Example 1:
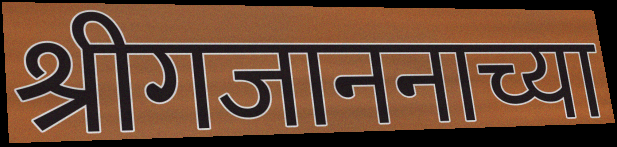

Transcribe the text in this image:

श्रीगजाननाच्या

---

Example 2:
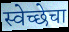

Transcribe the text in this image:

स्वेच्छेचा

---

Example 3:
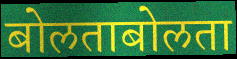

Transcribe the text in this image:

बोलताबोलता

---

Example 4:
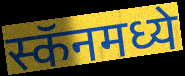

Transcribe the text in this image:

स्कॅनमध्ये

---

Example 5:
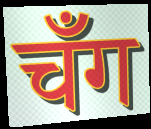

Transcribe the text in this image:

चँग